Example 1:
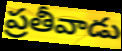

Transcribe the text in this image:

ప్రతీవాడు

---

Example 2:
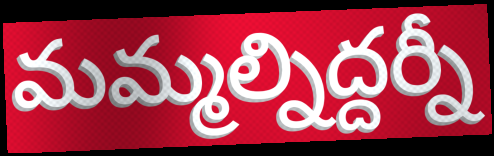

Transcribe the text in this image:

మమ్మల్నిద్దర్నీ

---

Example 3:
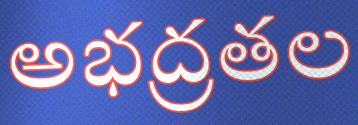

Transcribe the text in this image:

అభద్రతల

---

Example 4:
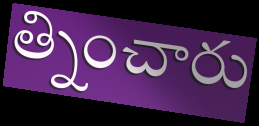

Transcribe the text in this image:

త్నించారు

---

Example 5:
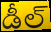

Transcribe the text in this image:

డీల్